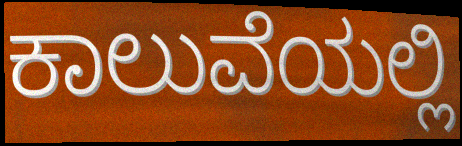
ಕಾಲುವೆಯಲ್ಲಿ